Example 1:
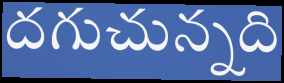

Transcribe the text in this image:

దగుచున్నది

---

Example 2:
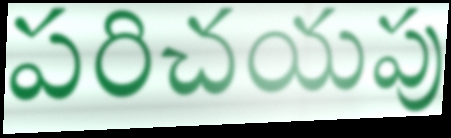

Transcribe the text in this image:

పరిచయపు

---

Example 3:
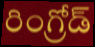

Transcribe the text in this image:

రింగ్రోడ్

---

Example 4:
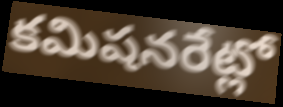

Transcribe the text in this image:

కమిషనరేట్లో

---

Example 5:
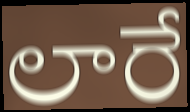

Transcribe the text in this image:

లారే